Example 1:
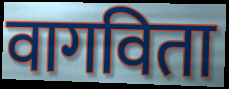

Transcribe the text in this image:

वागविता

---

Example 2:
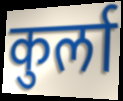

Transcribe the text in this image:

कुर्ला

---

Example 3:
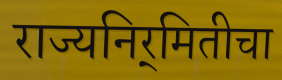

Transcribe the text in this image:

राज्यनिर्मितीचा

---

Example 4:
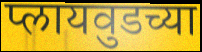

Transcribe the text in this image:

प्लायवुडच्या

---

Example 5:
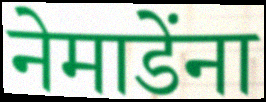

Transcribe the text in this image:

नेमाडेंना